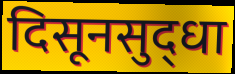
दिसूनसुद्धा